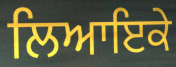
ਲਿਆਇਕੇ